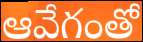
ఆవేగంతో